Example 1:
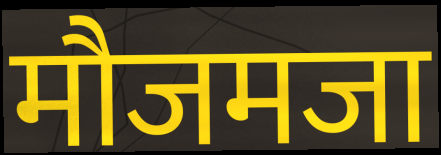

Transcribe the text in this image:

मौजमजा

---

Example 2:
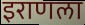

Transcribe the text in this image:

इराणला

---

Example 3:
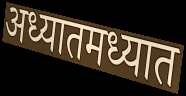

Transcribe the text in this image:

अध्यातमध्यात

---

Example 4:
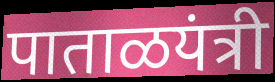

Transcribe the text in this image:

पाताळयंत्री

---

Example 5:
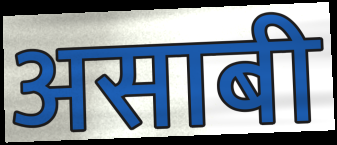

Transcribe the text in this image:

असाबी